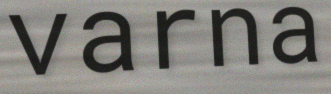
varna